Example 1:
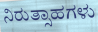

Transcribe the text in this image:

ನಿರುತ್ಸಾಹಗಳು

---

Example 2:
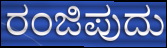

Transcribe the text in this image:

ರಂಜಿಪುದು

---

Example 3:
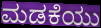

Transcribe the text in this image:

ಮಡಕೆಯು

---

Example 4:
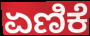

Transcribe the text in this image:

ಏಣಿಕೆ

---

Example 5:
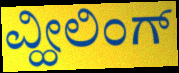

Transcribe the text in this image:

ವ್ಹೀಲಿಂಗ್